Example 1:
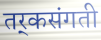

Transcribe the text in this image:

तर्कसंगती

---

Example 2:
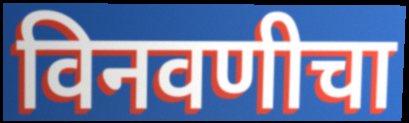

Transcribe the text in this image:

विनवणीचा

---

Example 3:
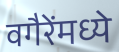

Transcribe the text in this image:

वगैरेंमध्ये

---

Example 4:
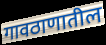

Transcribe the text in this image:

गावठाणातील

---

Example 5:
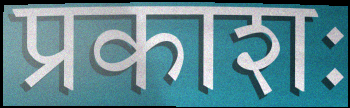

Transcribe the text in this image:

प्रकाशः